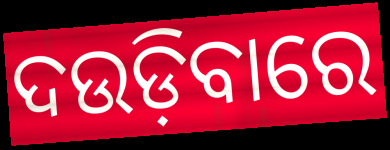
ଦଉଡ଼ିବାରେ